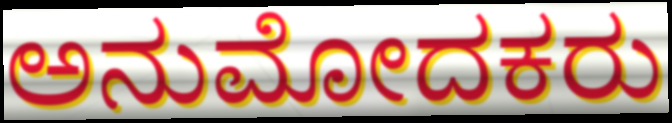
ಅನುಮೋದಕರು